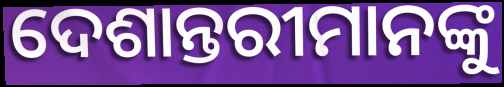
ଦେଶାନ୍ତରୀମାନଙ୍କୁ